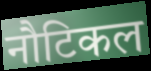
नौटिकल